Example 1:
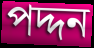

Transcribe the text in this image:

পদ্দন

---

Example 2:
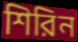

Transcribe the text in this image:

শিরিন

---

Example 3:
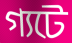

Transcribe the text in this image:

গ্যটে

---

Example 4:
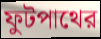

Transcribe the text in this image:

ফুটপাথের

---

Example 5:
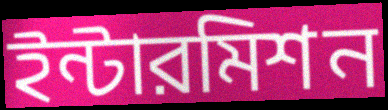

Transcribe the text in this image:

ইন্টারমিশন